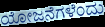
ಯೋಜನೆಗಳೆಂದು